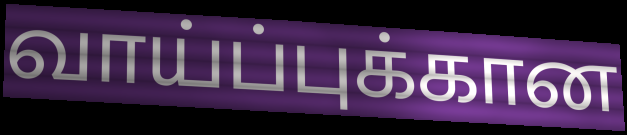
வாய்ப்புக்கான